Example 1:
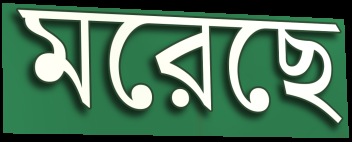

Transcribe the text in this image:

মরেছে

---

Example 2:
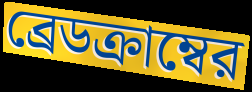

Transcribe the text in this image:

ব্রেডক্রাম্বের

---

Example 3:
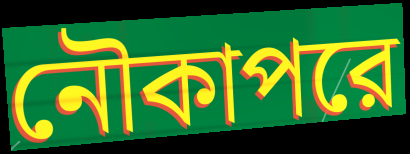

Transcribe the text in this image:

নৌকাপরে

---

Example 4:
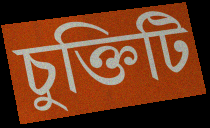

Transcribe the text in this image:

চুক্তিটি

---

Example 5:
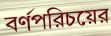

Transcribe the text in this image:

বর্ণপরিচয়ের